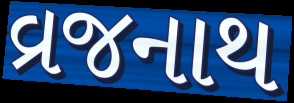
વ્રજનાથ